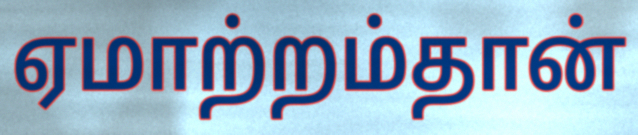
ஏமாற்றம்தான்